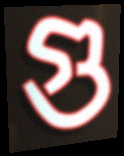
গু